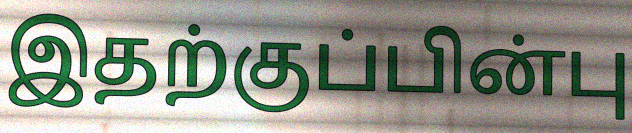
இதற்குப்பின்பு